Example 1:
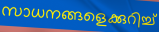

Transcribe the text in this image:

സാധനങ്ങളെക്കുറിച്ച്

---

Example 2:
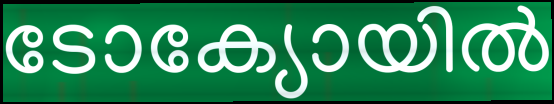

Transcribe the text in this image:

ടോക്യോയിൽ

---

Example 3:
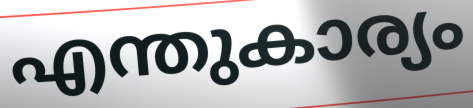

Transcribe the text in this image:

എന്തുകാര്യം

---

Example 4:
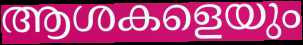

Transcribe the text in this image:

ആശകളെയും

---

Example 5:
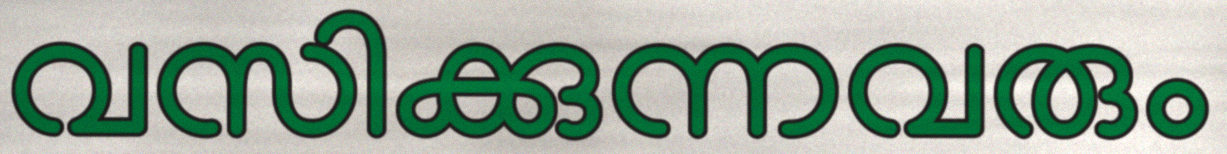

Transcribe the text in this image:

വസിക്കുന്നവരും